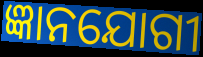
ଜ୍ଞାନଯୋଗୀ